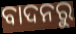
ବାଦନରୁ